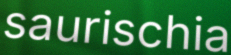
saurischia